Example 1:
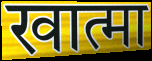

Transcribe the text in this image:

खात्मा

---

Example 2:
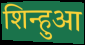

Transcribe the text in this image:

शिन्हुआ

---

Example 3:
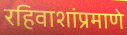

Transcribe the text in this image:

रहिवाशांप्रमाणे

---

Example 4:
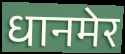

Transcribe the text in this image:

धानमेर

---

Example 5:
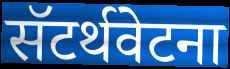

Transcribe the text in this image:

सॅटर्थवेटना